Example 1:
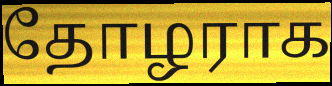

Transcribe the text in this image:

தோழராக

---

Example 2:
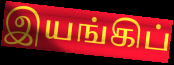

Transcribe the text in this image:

இயங்கிப்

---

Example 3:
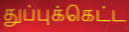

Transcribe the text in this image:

துப்புக்கெட்ட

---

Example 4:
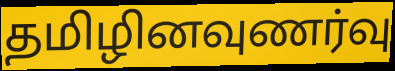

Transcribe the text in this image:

தமிழினவுணர்வு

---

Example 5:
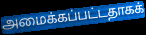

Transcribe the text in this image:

அமைக்கப்பட்டதாகக்